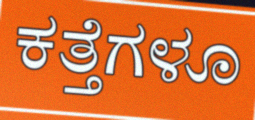
ಕತ್ತೆಗಳೂ